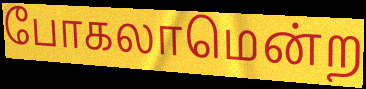
போகலாமென்ற